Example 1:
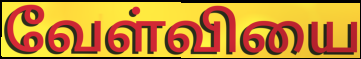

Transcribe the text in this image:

வேள்வியை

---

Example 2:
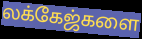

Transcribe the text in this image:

லக்கேஜ்களை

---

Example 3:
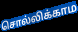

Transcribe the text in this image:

சொல்லிக்காம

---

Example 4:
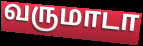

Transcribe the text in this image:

வருமாடா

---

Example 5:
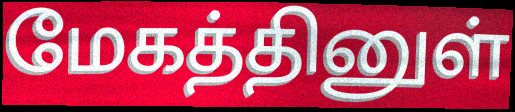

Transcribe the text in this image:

மேகத்தினுள்